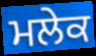
ਮਲੇਕ